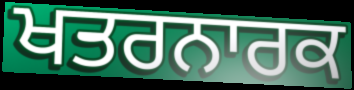
ਖਤਰਨਾਰਕ